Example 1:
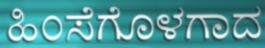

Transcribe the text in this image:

ಹಿಂಸೆಗೊಳಗಾದ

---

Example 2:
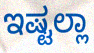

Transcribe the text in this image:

ಇಷ್ಟಲ್ಲಾ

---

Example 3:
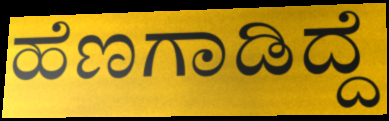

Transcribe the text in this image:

ಹೆಣಗಾಡಿದ್ದೆ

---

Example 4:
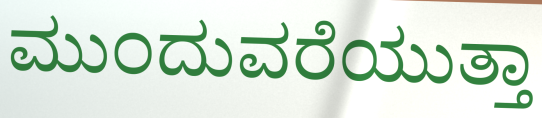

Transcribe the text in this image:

ಮುಂದುವರೆಯುತ್ತಾ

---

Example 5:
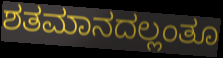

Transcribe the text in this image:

ಶತಮಾನದಲ್ಲಂತೂ